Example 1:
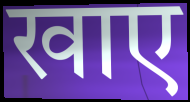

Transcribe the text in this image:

खाए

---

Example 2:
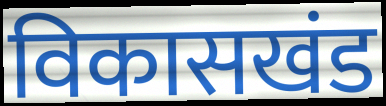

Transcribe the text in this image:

विकासखंड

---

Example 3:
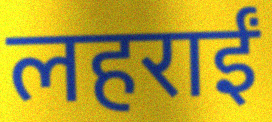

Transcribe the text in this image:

लहराईं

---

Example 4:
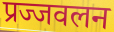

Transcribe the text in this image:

प्रज्जवलन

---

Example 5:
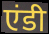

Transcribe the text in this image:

एंडी